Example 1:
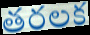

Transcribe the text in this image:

తరలక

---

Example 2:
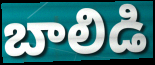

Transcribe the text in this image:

బాలిడి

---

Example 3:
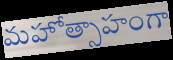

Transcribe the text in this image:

మహోత్సాహంగా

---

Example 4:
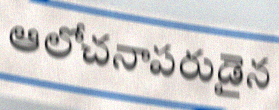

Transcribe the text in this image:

ఆలోచనాపరుడైన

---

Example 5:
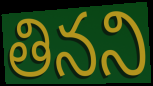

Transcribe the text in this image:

తినని